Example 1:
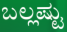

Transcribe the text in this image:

ಬಲ್ಲಷ್ಟು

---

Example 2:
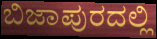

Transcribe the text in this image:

ಬಿಜಾಪುರದಲ್ಲಿ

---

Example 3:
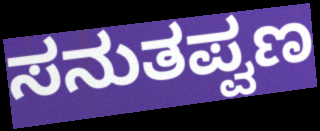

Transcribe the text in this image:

ಸನುತಪ್ವಣ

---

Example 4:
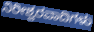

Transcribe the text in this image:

ನಿರೀಶ್ವರವಾದಿಗಳು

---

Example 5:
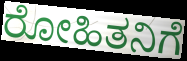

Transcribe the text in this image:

ರೋಹಿತನಿಗೆ